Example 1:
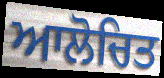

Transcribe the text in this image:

ਆਲੋਚਿਤ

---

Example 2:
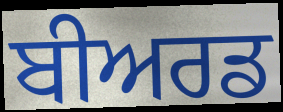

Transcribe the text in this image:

ਬੀਅਰਡ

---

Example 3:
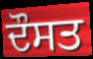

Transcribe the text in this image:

ਦੌਸਤ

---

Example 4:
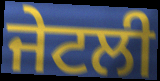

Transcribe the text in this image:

ਜੇਟਲੀ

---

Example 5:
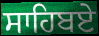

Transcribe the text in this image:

ਸਾਹਿਬਏ